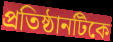
প্রতিষ্ঠানটিকে